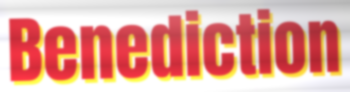
Benediction